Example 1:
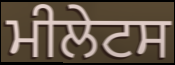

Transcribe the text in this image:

ਮੀਲੇਟਸ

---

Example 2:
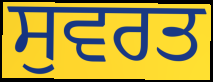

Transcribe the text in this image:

ਸੁਵਰਤ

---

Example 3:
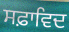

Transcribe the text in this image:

ਸਫ਼ਾਵਿਦ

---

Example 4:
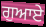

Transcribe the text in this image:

ਗੁਆਏ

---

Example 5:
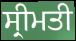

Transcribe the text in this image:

ਸ੍ਰੀਮਤੀ